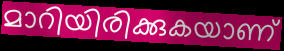
മാറിയിരിക്കുകയാണ്